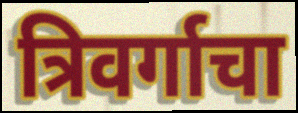
त्रिवर्गाचा